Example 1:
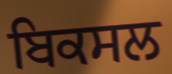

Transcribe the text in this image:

ਬਿਕਸਲ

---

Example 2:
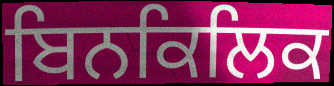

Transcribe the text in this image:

ਬਿਨਕਿਲਿਕ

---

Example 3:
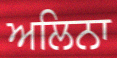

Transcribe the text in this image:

ਅਲਿਨਾ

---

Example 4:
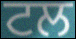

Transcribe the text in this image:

ਟਲ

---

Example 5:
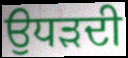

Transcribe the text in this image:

ਉਧੜਦੀ